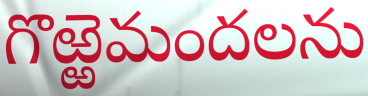
గొఱ్ఱెమందలను